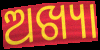
ଅଖ୍ୟା